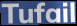
Tufail